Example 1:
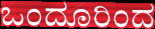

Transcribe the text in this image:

ಒಂದೂರಿಂದ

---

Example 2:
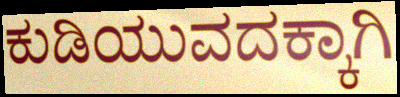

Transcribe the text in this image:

ಕುಡಿಯುವದಕ್ಕಾಗಿ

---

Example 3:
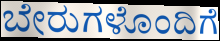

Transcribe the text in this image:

ಬೇರುಗಳೊಂದಿಗೆ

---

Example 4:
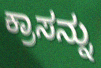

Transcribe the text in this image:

ಕ್ರಾಸನ್ನು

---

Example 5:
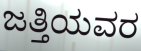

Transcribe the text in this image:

ಜತ್ತಿಯವರ